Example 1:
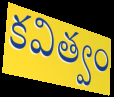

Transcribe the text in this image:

కవిత్వం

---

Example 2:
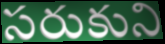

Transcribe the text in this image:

సరుకుని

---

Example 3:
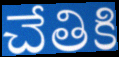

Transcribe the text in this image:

చేతికి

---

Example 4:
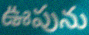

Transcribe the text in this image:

ఊపును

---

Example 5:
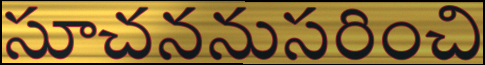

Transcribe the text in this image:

సూచననుసరించి